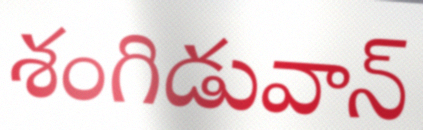
శంగిడువాన్